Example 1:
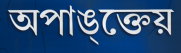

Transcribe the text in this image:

অপাঙ্‌ক্তেয়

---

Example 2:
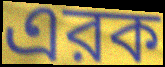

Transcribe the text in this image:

এরক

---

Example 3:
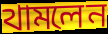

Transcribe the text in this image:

থামলেন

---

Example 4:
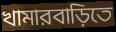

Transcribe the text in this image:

খামারবাড়িতে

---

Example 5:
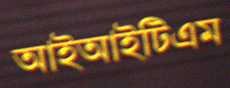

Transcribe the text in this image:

আইআইটিএম